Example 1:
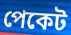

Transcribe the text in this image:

পেকেট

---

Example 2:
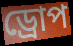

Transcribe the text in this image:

ড্ৰোপ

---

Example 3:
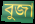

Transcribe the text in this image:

বুজা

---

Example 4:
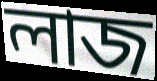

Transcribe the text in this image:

লাজ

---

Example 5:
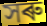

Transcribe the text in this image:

সৰু